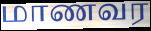
மாணவர